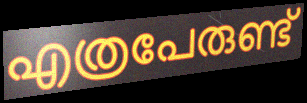
എത്രപേരുണ്ട്